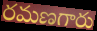
రమణగారు